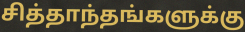
சித்தாந்தங்களுக்கு